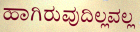
ಹಾಗಿರುವುದಿಲ್ಲವಲ್ಲ